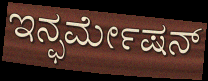
ಇನ್ಫರ್ಮೇಷನ್